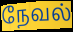
நேவல்